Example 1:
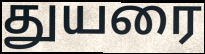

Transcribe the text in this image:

துயரை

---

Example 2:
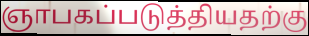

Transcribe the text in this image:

ஞாபகப்படுத்தியதற்கு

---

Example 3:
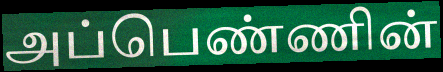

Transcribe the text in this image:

அப்பெண்ணின்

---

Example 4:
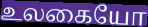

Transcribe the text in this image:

உலகையோ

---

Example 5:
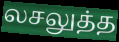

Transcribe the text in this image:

லசலுத்த